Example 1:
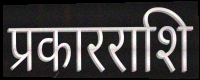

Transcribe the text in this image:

प्रकारराशि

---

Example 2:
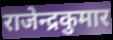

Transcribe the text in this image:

राजेन्द्रकुमार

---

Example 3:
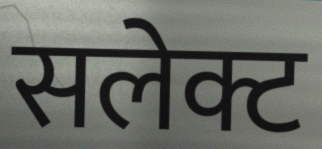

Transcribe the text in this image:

सलेक्ट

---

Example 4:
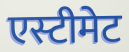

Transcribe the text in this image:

एस्‍टीमेट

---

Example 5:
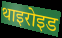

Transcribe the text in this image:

थाइरोइड